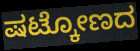
ಷಟ್ಕೋಣದ